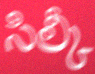
సిల్కీ